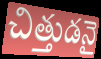
చిత్తుడనై